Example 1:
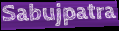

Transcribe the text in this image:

Sabujpatra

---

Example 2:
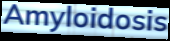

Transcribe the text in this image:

Amyloidosis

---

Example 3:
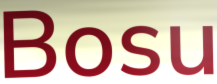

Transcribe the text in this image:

Bosu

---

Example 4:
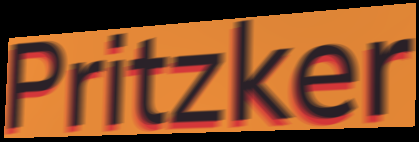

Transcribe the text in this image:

Pritzker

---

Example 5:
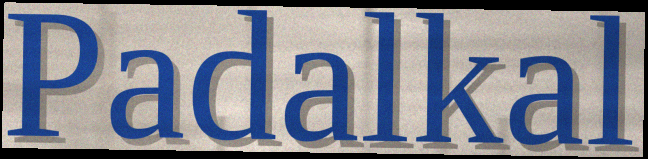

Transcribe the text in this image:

Padalkal